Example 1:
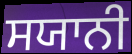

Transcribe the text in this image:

ਸਯਾਨੀ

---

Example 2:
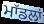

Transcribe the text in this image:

ਮਾੱਡਲਾਂ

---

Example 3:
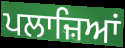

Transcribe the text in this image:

ਪਲਾਜ਼ਿਆਂ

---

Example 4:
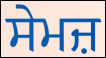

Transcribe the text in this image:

ਸੇਮਜ਼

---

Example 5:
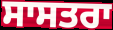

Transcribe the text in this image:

ਸਾਸਤਰਾ